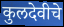
कुलदेवीचे